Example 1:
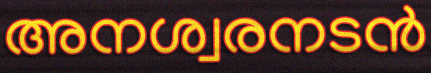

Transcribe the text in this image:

അനശ്വരനടൻ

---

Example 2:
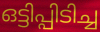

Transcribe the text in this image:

ഒട്ടിപ്പിടിച്ച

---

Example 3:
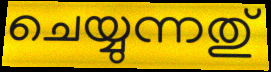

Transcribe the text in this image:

ചെയ്യുന്നതു്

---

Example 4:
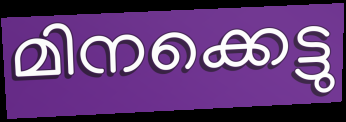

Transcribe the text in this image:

മിനക്കെട്ടു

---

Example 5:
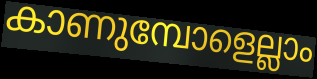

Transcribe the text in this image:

കാണുമ്പോളെല്ലാം